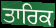
ਤਾਰਿਕ